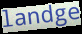
landge